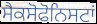
ਸੈਕਸੋਫੋਨਿਸਟਾਂ